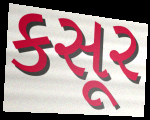
કસૂર